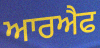
ਆਰਐਫ